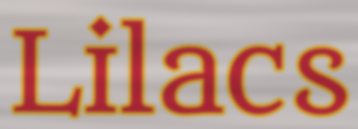
Lilacs